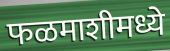
फळमाशीमध्ये